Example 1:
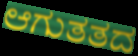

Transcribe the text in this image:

ಆಗುತತದ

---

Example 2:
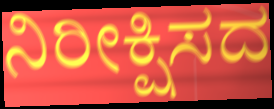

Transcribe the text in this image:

ನಿರೀಕ್ಷಿಸದ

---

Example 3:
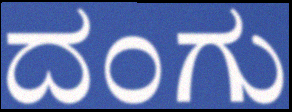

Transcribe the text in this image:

ದಂಗು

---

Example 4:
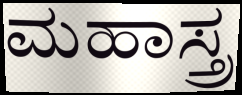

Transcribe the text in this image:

ಮಹಾಸ್ತ್ರ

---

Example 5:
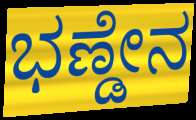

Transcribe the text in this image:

ಭಣ್ಡೇನ